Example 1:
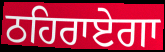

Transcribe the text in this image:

ਠਹਿਰਾਏਗਾ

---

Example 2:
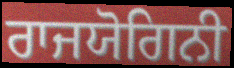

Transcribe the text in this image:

ਰਾਜਯੋਗਿਨੀ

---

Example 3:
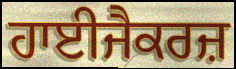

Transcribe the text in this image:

ਹਾਈਜੈਕਰਜ਼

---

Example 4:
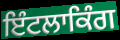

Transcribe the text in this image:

ਇੰਟਲਾਕਿੰਗ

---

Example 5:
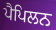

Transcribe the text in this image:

ਪੈਪਿਲਨ